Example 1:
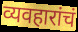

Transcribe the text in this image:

व्यवहारांचं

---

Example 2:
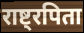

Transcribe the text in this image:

राष्ट्रपिता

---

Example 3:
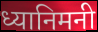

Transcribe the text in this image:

ध्यानिमनी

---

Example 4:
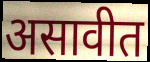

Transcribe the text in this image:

असावीत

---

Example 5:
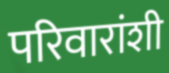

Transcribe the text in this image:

परिवारांशी